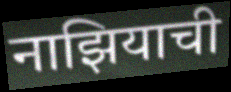
नाझियाची